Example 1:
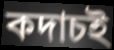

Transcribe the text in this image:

কদাচই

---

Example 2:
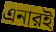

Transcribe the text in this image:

এনারই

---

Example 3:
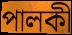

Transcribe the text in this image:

পালকী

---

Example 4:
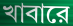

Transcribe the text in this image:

খাবারে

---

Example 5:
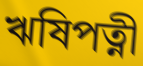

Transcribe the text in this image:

ঋষিপত্নী